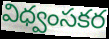
విధ్వంసకర